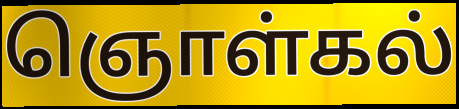
ஞொள்கல்